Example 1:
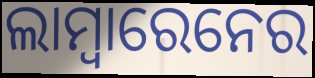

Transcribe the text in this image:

ଲାମ୍ବାରେନେର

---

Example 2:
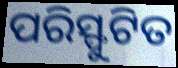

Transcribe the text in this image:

ପରିସ୍ଫୁଟିତ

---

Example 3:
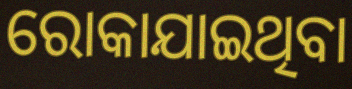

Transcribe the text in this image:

ରୋକାଯାଇଥିବା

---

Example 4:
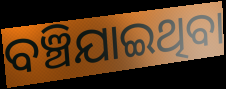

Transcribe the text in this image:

ବଞ୍ଚିଯାଇଥିବା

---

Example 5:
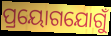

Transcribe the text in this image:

ପ୍ରୟୋଗଯୋଗୁଁ